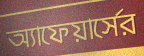
অ্যাফেয়ার্সের